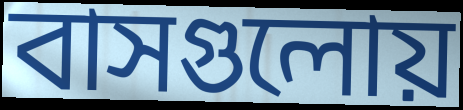
বাসগুলোয়